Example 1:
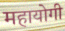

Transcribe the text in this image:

महायोगी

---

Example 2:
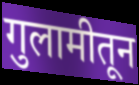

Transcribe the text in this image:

गुलामीतून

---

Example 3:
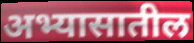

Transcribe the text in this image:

अभ्यासातील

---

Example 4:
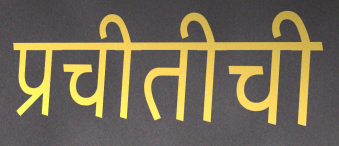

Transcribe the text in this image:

प्रचीतीची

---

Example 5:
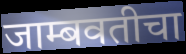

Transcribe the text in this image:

जाम्बवतीचा